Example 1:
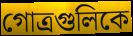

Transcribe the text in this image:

গোত্রগুলিকে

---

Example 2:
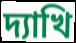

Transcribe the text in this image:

দ্যাখি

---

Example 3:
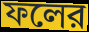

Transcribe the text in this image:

ফলের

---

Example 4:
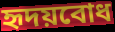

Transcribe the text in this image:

হৃদয়বোধ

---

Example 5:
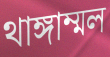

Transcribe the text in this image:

থাঙ্গাম্মল